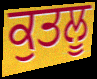
ਕੁਤਲੂ